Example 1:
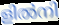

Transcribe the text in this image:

ളിൽനി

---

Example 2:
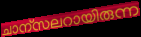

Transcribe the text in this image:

ചാന്സലറായിരുന്ന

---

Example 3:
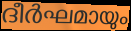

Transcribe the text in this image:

ദീർഘമായും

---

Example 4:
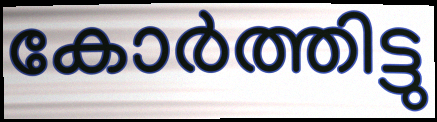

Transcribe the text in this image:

കോർത്തിട്ടു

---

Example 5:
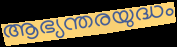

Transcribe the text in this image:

ആഭ്യന്തരയുദ്ധം